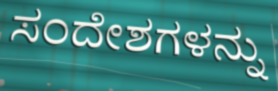
ಸಂದೇಶಗಳನ್ನು